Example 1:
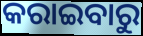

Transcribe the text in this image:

କରାଇବାରୁ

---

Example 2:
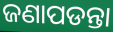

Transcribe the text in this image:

ଜଣାପଡନ୍ତା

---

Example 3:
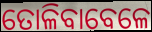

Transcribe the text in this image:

ତୋଳିବାବେଳେ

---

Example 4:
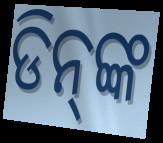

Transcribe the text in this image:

ଡିନ୍‍ଙ୍କ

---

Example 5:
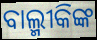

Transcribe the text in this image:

ବାଲ୍ମୀକିଙ୍କ